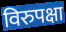
विरुपक्षा